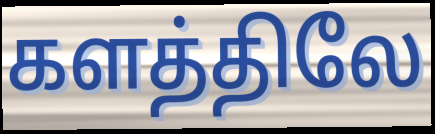
களத்திலே